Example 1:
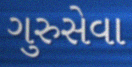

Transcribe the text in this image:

ગુરુસેવા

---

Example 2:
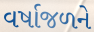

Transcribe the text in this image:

વર્ષાજળને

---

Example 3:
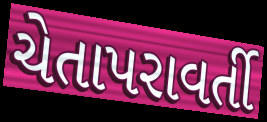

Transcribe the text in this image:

ચેતાપરાવર્તી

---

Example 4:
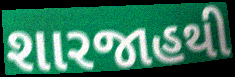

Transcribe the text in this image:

શારજાહથી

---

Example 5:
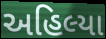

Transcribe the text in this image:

અહિલ્યા